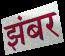
झंबर